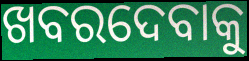
ଖବରଦେବାକୁ